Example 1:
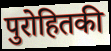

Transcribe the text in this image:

पुरोहितकी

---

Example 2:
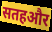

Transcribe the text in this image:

सतहऔर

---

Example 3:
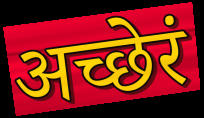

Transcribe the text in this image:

अच्छेरं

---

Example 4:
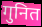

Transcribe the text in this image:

गुनित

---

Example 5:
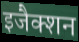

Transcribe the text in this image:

इजैक्शन